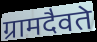
ग्रामदैवते